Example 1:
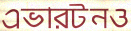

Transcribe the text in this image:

এভারটনও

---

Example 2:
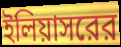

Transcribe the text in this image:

ইলিয়াসরের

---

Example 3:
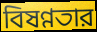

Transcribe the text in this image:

বিষণ্নতার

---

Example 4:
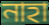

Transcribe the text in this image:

নাহা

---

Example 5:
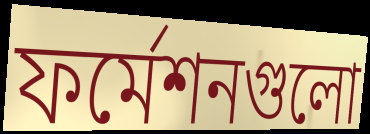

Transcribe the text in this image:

ফর্মেশনগুলো